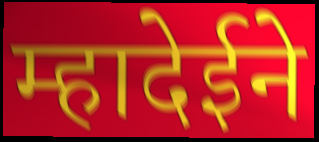
म्हादेईने